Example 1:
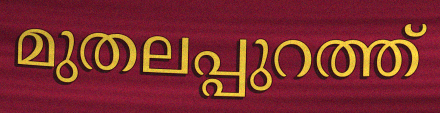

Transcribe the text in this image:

മുതലപ്പുറത്ത്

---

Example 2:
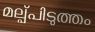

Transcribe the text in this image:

മല്പ്പിടുത്തം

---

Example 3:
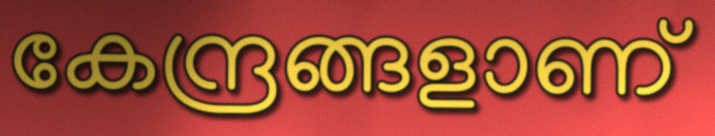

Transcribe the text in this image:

കേന്ദ്രങ്ങളാണ്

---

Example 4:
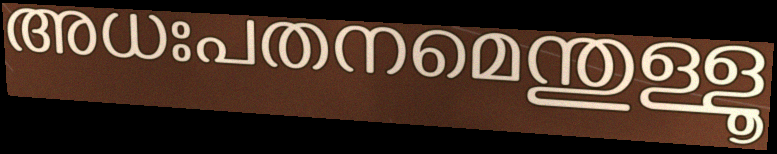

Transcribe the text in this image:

അധഃപതനമെന്തുള്ളൂ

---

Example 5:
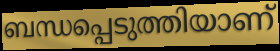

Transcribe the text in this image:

ബന്ധപ്പെടുത്തിയാണ്